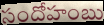
సందోహంబు